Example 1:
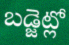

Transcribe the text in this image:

బడ్జెట్లో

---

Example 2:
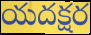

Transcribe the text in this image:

యదక్షర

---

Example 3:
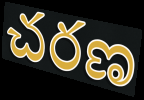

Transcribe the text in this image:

చరణ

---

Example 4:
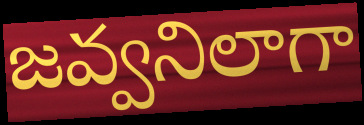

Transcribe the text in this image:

జవ్వనిలాగా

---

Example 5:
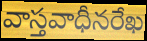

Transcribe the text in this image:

వాస్తవాధీనరేఖ